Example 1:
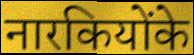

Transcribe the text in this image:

नारकियोंके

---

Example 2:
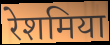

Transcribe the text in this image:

रेशमिया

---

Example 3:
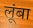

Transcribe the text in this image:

लूंबा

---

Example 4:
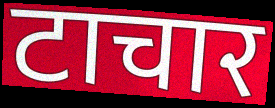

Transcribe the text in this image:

टाचार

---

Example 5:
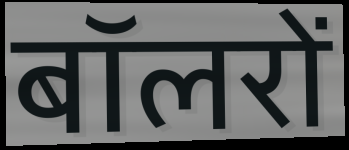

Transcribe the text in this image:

बॉलरों